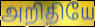
அறிதியே